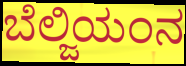
ಬೆಲ್ಜಿಯಂನ